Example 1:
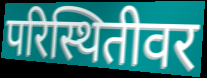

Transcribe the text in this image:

परिस्थितीवर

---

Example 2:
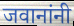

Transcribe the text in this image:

जवानांनी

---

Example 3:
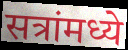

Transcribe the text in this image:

सत्रांमध्ये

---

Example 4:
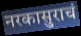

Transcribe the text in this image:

नरकासुराचं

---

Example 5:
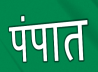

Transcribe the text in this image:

पंपात